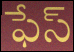
ఫేస్